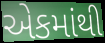
એકમાંથી